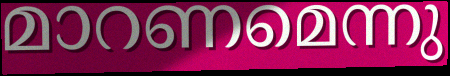
മാറണമെന്നു